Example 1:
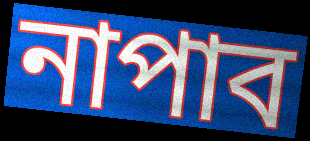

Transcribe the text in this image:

নাপাব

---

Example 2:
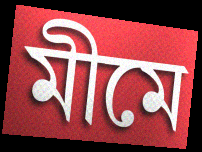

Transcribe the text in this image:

মীমে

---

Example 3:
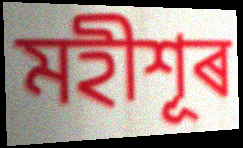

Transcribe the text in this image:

মহীশূৰ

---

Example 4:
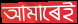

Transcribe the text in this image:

আমাৰেই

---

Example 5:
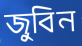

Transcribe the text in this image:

জুবিন